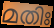
മതിഃ